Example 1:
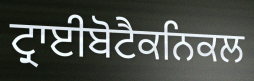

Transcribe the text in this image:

ਟ੍ਰਾਈਬੋਟੈਕਨਿਕਲ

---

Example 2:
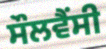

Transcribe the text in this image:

ਸੌਲਵੈਂਸੀ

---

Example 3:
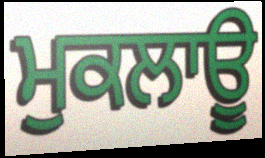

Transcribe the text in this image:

ਮੁਕਲਾਊ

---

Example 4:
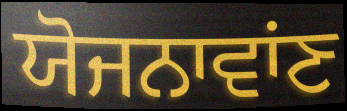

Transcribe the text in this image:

ਯੋਜਨਾਵਾਂਣ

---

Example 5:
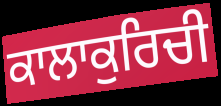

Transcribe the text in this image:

ਕਾਲਾਕੁਰਿਚੀ